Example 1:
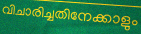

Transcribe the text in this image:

വിചാരിച്ചതിനേക്കാളും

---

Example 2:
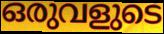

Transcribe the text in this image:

ഒരുവളുടെ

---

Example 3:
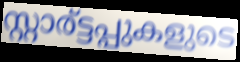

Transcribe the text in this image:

സ്റ്റാര്ട്ടപ്പുകളുടെ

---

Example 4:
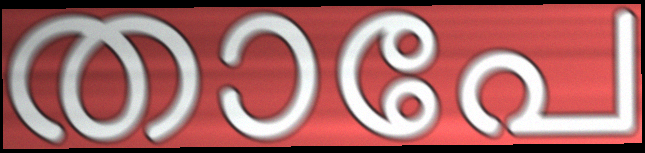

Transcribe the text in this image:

താപേ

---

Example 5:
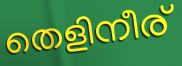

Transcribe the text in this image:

തെളിനീര്